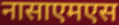
नासाएमएस